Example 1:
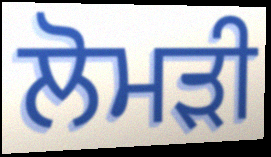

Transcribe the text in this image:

ਲੋਮੜੀ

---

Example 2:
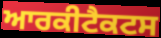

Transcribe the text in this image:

ਆਰਕੀਟੈਕਟਸ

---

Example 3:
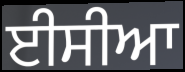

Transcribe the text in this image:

ਈਸੀਆ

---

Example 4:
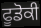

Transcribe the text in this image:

ਫੂਡੋਕੀ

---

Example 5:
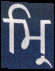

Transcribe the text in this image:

ਮ੍ਰਿ